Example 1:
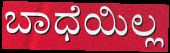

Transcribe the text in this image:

ಬಾಧೆಯಿಲ್ಲ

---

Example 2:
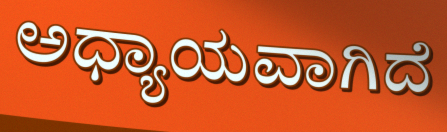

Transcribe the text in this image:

ಅಧ್ಯಾಯವಾಗಿದೆ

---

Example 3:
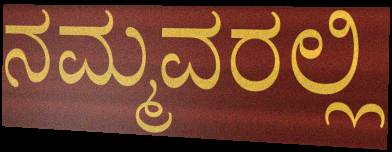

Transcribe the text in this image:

ನಮ್ಮವರಲ್ಲಿ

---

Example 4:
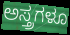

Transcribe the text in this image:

ಅಸ್ತ್ರಗಳೂ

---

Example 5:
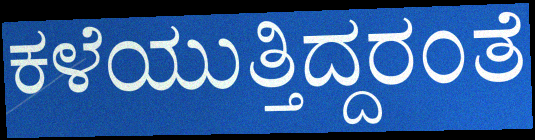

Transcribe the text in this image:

ಕಳೆಯುತ್ತಿದ್ದರಂತೆ